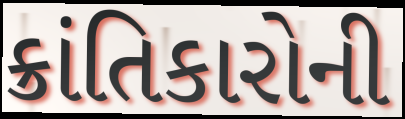
ક્રાંતિકારોની